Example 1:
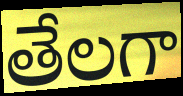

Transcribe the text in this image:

తేలగా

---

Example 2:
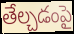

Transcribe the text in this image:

తేల్చడంపై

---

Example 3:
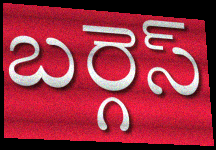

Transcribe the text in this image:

బర్గెస్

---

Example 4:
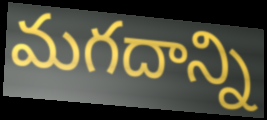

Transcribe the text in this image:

మగదాన్ని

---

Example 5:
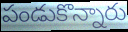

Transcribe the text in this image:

పండుకొన్నారు